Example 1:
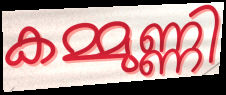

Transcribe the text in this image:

കമ്മുണ്ണി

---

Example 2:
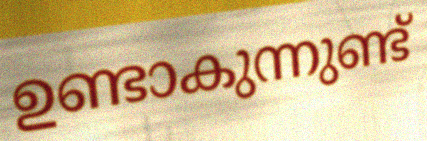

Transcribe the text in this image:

ഉണ്ടാകുന്നുണ്ട്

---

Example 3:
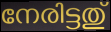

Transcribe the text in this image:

നേരിട്ടതു്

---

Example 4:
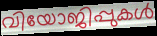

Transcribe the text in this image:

വിയോജിപ്പുകൾ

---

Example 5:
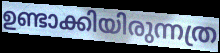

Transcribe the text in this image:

ഉണ്ടാക്കിയിരുന്നത്ര